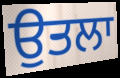
ਉਤਲਾ